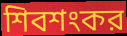
শিবশংকর